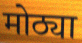
मोठ्या